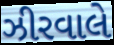
ઝીરવાલે